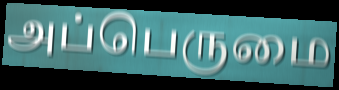
அப்பெருமை